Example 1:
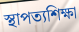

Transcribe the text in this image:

স্থাপত্যশিক্ষা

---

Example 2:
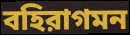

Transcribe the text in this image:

বহিরাগমন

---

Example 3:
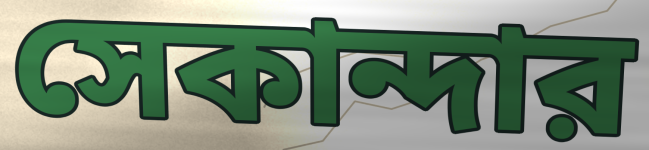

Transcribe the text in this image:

সেকান্দার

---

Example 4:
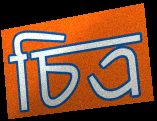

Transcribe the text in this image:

চিত্র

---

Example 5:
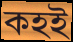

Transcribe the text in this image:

কহই